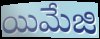
యిమేజి